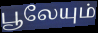
பூலேயும்